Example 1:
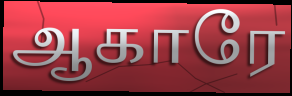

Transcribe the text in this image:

ஆகாரே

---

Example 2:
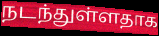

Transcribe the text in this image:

நடந்துள்ளதாக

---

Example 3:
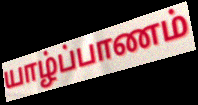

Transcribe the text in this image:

யாழ்ப்பாணம்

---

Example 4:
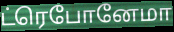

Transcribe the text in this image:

ட்ரெபோனேமா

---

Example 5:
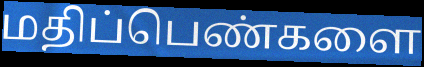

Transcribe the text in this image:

மதிப்பெண்களை